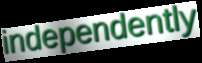
independently